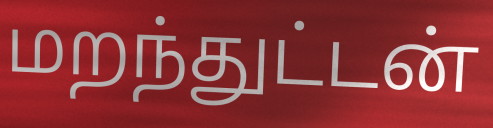
மறந்துட்டன்